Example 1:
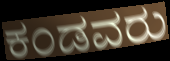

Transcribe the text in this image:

ಕಂಡವರು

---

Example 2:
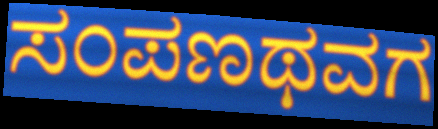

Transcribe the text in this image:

ಸಂಪಣಥವಗ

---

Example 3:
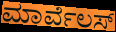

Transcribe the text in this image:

ಮಾರ್ವೆಲಸ್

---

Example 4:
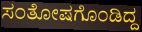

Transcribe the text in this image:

ಸಂತೋಷಗೊಂಡಿದ್ದ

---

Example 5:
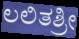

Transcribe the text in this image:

ಲಲಿತಶ್ರೀ